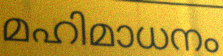
മഹിമാധനം